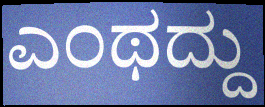
ಎಂಥದ್ದು